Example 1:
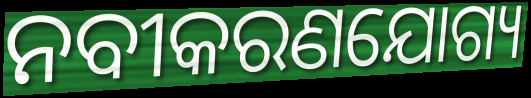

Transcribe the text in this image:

ନବୀକରଣଯୋଗ୍ୟ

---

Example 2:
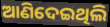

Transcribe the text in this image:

ଆଣିଦେଇଥିଲି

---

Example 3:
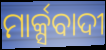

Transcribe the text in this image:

ମାର୍କ୍ସବାଦୀ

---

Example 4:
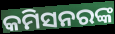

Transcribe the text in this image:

କମିସନରଙ୍କ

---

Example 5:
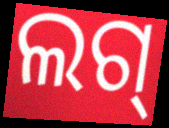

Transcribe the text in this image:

ଲଗ୍